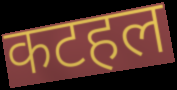
कटहल